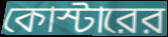
কোস্টারের